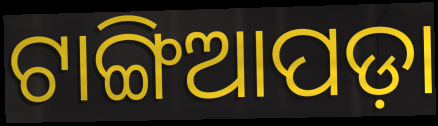
ଟାଙ୍ଗିଆପଡ଼ା